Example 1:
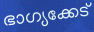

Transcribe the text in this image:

ഭാഗ്യക്കേട്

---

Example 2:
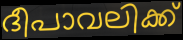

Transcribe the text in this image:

ദീപാവലിക്ക്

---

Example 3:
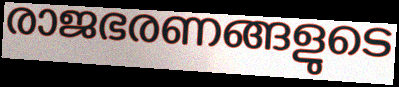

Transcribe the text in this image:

രാജഭരണങ്ങളുടെ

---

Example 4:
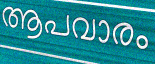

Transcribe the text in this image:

ആപവാരം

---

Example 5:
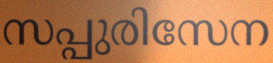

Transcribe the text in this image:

സപ്പുരിസേന